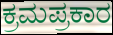
ಕ್ರಮಪ್ರಕಾರ